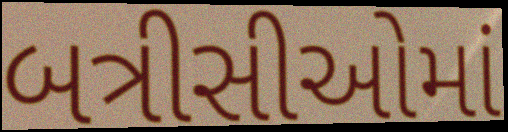
બત્રીસીઓમાં